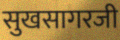
सुखसागरजी